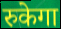
रुकेगा